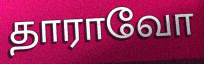
தாராவோ